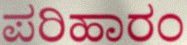
ಪರಿಹಾರಂ